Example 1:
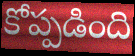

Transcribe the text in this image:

కోప్పడింది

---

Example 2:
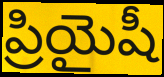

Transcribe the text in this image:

ప్రియైషీ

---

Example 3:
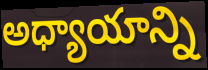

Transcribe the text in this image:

అధ్యాయాన్ని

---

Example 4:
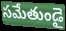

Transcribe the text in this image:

సమేతుండై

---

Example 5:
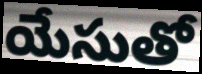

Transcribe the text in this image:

యేసుతో